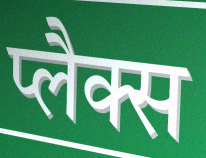
प्लैक्स